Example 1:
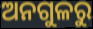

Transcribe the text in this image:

ଅନଗୁଳରୁ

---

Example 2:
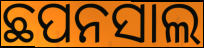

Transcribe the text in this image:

ଛପନସାଲ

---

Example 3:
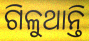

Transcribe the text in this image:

ଗିଳୁଥାନ୍ତି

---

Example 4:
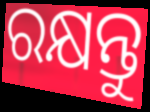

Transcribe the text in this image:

ରକ୍ଷନ୍ତୁ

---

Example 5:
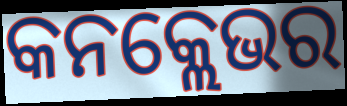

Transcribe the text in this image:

କନକ୍ଲେଭର